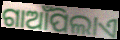
ଗାଆଁପିଲାଏ